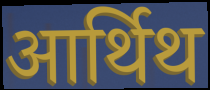
आर्थिथ